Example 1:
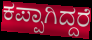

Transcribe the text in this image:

ಕಪ್ಪಾಗಿದ್ದರೆ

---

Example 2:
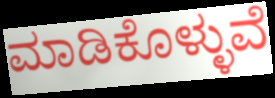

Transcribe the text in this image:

ಮಾಡಿಕೊಳ್ಳುವೆ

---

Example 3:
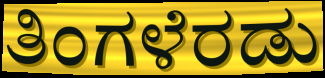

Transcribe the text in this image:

ತಿಂಗಳೆರಡು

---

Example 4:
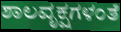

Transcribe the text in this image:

ಶಾಲವೃಕ್ಷಗಳಂತೆ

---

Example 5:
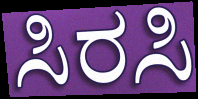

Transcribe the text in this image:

ಸಿರಸಿ